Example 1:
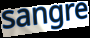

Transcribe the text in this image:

sangre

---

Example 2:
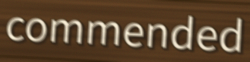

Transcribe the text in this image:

commended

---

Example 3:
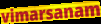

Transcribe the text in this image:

vimarsanam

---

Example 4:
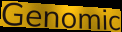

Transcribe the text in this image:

Genomic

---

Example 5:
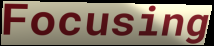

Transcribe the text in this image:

Focusing